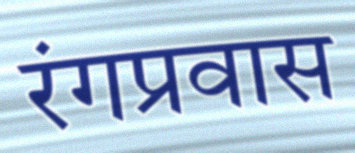
रंगप्रवास